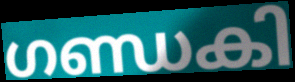
ഗണ്ഡകി